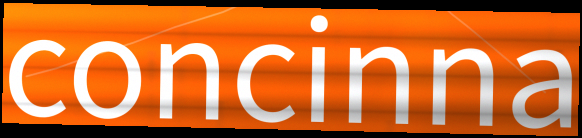
concinna